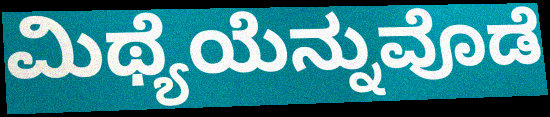
ಮಿಥ್ಯೆಯೆನ್ನುವೊಡೆ